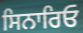
ਸਿਨਾਰਿਓ